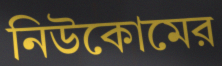
নিউকোমের